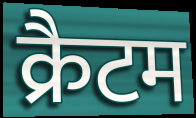
क्रैटम